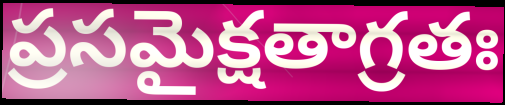
ప్రసమైక్షతాగ్రతః